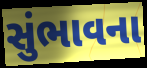
સુંભાવના